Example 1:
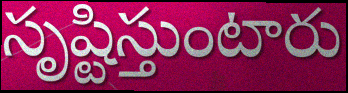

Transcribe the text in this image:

సృష్టిస్తుంటారు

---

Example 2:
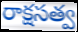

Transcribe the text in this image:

రాక్షసత్వ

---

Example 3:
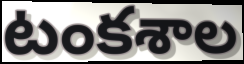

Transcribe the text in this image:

టంకశాల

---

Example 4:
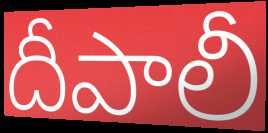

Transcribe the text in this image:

దీపాలీ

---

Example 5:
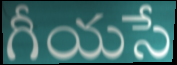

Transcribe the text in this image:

గీయసే